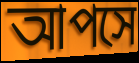
আপসে